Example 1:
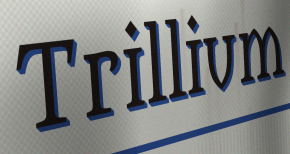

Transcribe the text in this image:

Trillium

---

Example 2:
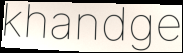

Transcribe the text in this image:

khandge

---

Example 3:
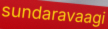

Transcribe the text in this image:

sundaravaagi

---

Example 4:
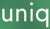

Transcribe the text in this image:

uniq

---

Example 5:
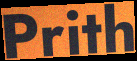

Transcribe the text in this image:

Prith